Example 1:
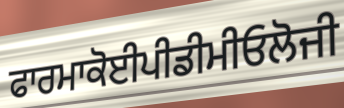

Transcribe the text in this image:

ਫਾਰਮਾਕੋਈਪੀਡੀਮੀਓਲੋਜੀ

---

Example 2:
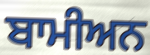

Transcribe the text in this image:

ਬਾਮੀਅਨ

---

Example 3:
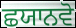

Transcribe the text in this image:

ਛਯਾਨਵੋ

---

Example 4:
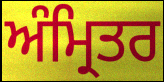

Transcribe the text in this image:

ਅੰਮ੍ਰਿਤਰ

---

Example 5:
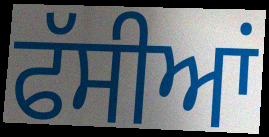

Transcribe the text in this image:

ਫੱਸੀਆਂ